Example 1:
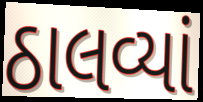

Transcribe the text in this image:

ઠાલવ્યાં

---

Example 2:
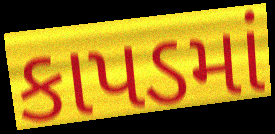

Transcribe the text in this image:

કાપડમાં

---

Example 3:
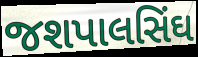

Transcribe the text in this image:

જશપાલસિંઘ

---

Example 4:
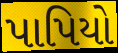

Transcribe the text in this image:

પાપિયો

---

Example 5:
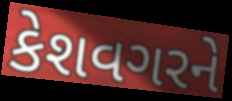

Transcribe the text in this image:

કેશવગરને